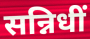
सन्निधीं